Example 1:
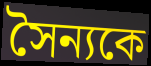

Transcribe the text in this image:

সৈন্যকে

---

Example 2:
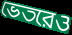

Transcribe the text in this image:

ভেতরেও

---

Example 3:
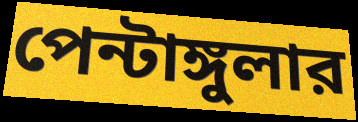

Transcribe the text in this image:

পেন্টাঙ্গুলার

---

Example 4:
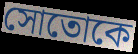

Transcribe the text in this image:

সোতোকে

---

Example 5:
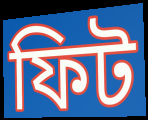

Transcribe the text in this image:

ফিট